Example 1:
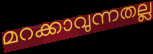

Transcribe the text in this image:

മറക്കാവുന്നതല്ല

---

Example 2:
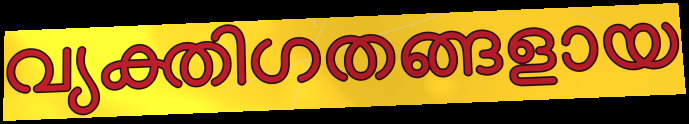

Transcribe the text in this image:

വ്യക്തിഗതങ്ങളായ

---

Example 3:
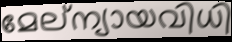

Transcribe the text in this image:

മേല്ന്യായവിധി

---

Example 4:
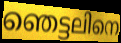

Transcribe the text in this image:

ഞെട്ടലിനെ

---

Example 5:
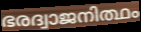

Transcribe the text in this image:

ഭരദ്വാജനിത്ഥം